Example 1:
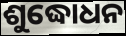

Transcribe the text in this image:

ଶୁଦ୍ଧୋଧନ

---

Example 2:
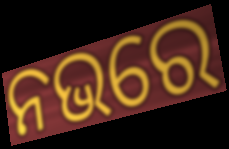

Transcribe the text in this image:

ନଭରେ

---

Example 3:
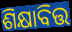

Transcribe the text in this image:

ଶିକ୍ଷାବିତ୍ତ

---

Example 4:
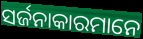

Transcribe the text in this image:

ସର୍ଜନାକାରମାନେ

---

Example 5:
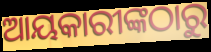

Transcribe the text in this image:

ଆୟକାରୀଙ୍କଠାରୁ